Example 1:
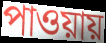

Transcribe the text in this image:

পাওয়ায়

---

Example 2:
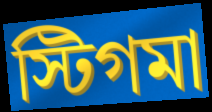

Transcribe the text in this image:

স্টিগমা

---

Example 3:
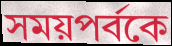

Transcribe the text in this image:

সময়পর্বকে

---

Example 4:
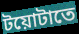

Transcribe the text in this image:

টয়োটাতে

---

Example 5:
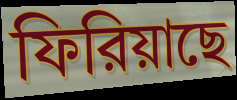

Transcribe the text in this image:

ফিরিয়াছে